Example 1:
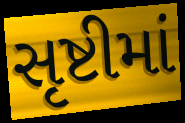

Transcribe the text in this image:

સૃષ્ટીમાં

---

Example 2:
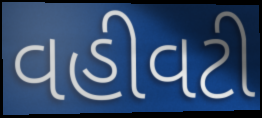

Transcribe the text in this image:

વહીવટી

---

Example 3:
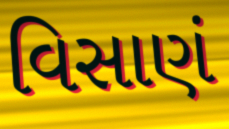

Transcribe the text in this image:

વિસાણં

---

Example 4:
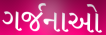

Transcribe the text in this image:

ગર્જનાઓ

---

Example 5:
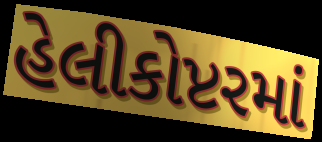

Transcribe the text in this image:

હેલીકોપ્ટરમાં